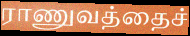
ராணுவத்தைச்